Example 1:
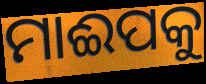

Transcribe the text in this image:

ମାଈପକୁ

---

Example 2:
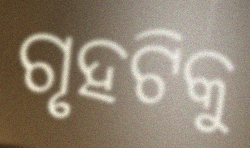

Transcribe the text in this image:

ଗୃହଟିକୁ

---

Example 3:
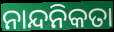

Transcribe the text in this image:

ନାନ୍ଦନିକତା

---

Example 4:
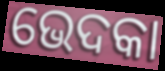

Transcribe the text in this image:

ଭେଦକା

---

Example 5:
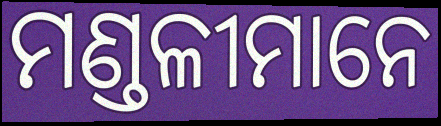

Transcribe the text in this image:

ମଣ୍ଡଳୀମାନେ